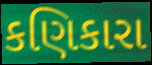
કણિકારા